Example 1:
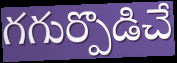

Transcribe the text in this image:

గగుర్పొడిచే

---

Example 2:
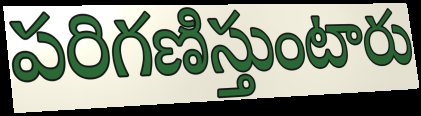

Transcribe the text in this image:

పరిగణిస్తుంటారు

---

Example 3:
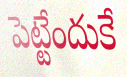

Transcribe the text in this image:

పెట్టేందుకే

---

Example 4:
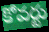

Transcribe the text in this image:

కోవర్టు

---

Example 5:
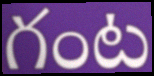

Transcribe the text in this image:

గంట